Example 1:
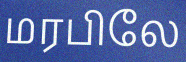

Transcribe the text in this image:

மரபிலே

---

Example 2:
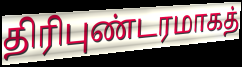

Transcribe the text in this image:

திரிபுண்டரமாகத்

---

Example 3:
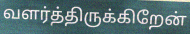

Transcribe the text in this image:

வளர்த்திருக்கிறேன்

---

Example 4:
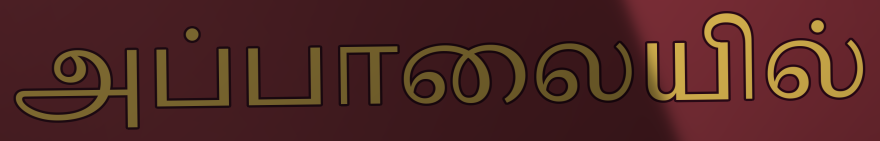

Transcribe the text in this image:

அப்பாலையில்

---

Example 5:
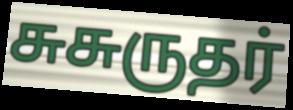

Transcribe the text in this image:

சுசுருதர்